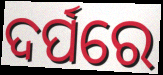
ଦର୍ପରେ